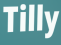
Tilly